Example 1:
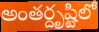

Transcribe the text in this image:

అంతర్దృష్టిలో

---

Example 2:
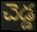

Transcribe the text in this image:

చెడ్డ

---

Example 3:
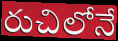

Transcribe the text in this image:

రుచిలోనే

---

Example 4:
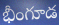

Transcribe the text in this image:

భీంగూడ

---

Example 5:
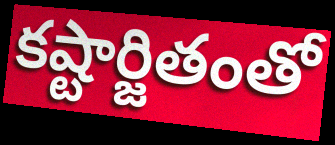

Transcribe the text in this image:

కష్టార్జితంతో